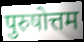
पुरुषोत्तम